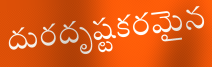
దురదృష్టకరమైన